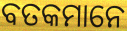
ବତକମାନେ